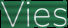
Vies